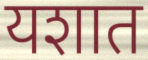
यशात